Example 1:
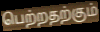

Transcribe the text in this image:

பெற்றதற்கும்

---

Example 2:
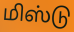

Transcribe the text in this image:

மிஸ்டு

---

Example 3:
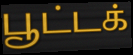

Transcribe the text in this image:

பூட்டக்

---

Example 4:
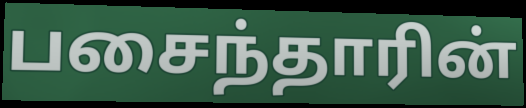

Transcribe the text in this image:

பசைந்தாரின்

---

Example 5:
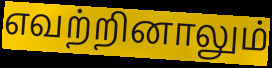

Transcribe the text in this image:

எவற்றினாலும்